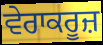
ਵੇਰਾਕਰੂਜ਼